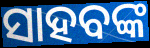
ସାହବଙ୍କ